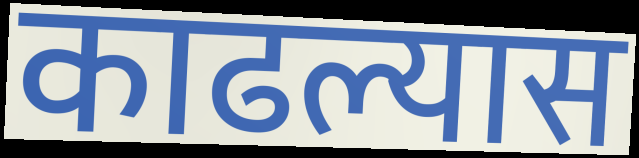
काढल्यास